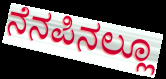
ನೆನಪಿನಲ್ಲೂ